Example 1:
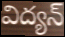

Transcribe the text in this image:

విద్యన్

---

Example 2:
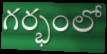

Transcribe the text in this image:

గర్భంలో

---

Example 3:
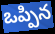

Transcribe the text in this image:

ఒప్పిన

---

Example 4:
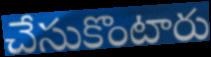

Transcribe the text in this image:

చేసుకొంటారు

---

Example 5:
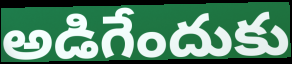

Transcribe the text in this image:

అడిగేందుకు